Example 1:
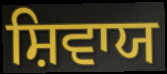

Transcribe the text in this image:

ਸ਼ਿਵਾਯ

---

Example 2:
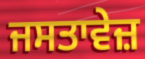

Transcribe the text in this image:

ਜਸਤਾਵੇਜ਼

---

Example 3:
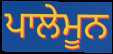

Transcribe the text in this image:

ਪਾਲੇਮੂਨ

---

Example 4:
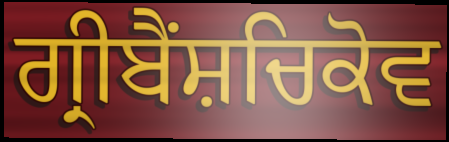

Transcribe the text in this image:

ਗ੍ਰੀਬੈਂਸ਼ਚਿਕੋਵ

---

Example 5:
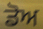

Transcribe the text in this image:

ਡੋਅ